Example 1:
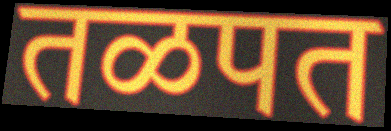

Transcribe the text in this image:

तळपत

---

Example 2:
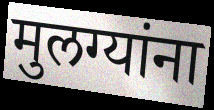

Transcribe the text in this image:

मुलग्यांना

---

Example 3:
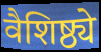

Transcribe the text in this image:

वैशिष्ठ्ये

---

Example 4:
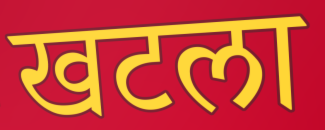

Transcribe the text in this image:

खटला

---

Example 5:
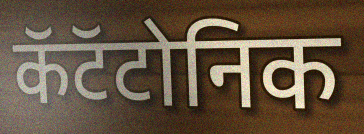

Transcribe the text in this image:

कॅटॅटोनिक